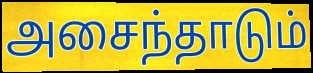
அசைந்தாடும்